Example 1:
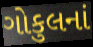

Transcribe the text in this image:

ગોકુલનાં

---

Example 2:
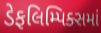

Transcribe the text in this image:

ડેફલિમ્પિક્સમાં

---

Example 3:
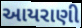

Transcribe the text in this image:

આયરાણી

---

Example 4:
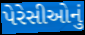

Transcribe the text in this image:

પેરેસીઓનું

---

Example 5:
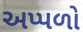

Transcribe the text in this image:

અપ્પળો